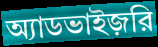
অ্যাডভাইজ়রি